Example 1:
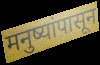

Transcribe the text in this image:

मनुष्यांपासून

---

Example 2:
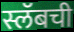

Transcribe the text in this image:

स्लॅबची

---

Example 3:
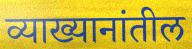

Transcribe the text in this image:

व्याख्यानांतील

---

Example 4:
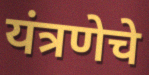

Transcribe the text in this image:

यंत्रणेचे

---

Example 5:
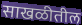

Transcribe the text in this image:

साखळीतील